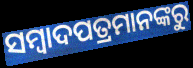
ସମ୍ୱାଦପତ୍ରମାନଙ୍କରୁ